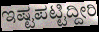
ಇಷ್ಟಪಟ್ಟಿದ್ದೀರಿ